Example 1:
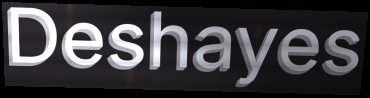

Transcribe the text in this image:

Deshayes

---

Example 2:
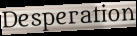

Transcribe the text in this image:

Desperation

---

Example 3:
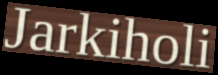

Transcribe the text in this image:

Jarkiholi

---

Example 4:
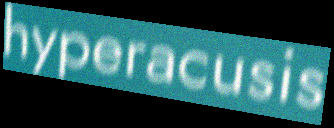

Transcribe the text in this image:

hyperacusis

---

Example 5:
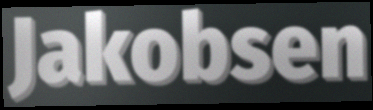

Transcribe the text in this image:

Jakobsen